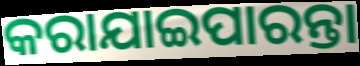
କରାଯାଇପାରନ୍ତା